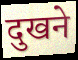
दुखने